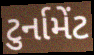
ટુર્નામેંટ